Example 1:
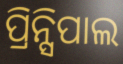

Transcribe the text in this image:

ପ୍ରିନ୍ସିପାଲ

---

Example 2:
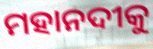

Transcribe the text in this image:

ମହାନଦୀକୁ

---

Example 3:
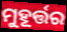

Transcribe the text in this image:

ମୁହୂର୍ତ୍ତର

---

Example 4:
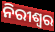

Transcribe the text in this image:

ନିରୀଶ୍ୱର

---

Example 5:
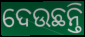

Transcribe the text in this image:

ଦେଉଛନ୍ତି